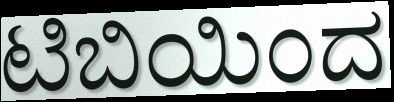
ಟಿಬಿಯಿಂದ